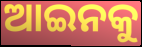
ଆଇନକୁ